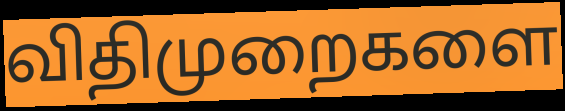
விதிமுறைகளை